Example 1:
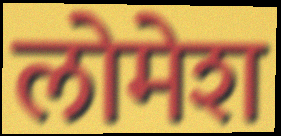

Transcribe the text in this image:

लोमेश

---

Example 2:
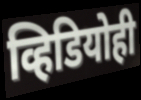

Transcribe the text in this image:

व्हिडियोही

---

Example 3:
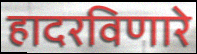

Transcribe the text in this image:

हादरविणारे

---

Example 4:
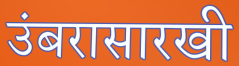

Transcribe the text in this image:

उंबरासारखी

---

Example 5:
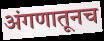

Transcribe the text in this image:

अंगणातूनच